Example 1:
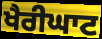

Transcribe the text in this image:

ਖੈਰੀਘਾਟ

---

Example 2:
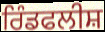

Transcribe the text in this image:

ਰਿੰਡਫਲੀਸ਼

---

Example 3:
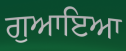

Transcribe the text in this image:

ਗੁਆਇਆ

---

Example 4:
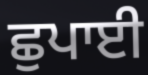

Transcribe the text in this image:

ਛੁਪਾਈ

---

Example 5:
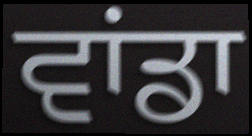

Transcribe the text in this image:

ਵਾਂਡਾ